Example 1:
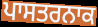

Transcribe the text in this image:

ਪਾਸਤਰਨਾਕ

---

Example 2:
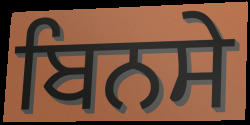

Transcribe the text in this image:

ਬਿਨਸੇ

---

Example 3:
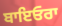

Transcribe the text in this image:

ਬਾਇਓਰਾ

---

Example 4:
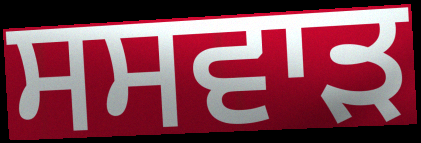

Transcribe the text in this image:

ਸਸਵਾੜ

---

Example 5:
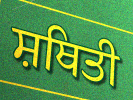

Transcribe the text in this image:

ਸ਼ਥਿਤੀ